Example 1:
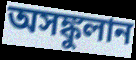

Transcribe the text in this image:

অসঙ্কুলান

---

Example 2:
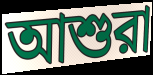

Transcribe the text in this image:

আশুরা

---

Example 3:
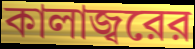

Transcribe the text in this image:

কালাজ্বরের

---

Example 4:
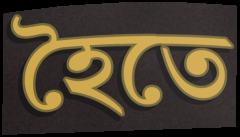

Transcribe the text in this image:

হৈতে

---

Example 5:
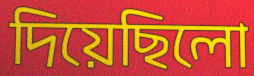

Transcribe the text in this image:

দিয়েছিলো